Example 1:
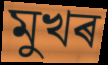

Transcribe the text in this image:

মুখৰ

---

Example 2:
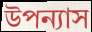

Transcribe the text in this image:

উপন্যাস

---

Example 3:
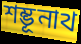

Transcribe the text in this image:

শম্ভূনাথ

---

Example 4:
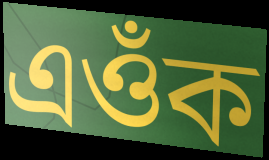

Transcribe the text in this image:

এওঁক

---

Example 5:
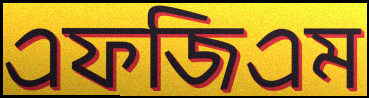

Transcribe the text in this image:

এফজিএম